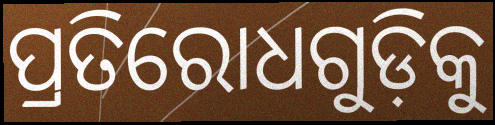
ପ୍ରତିରୋଧଗୁଡ଼ିକୁ